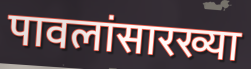
पावलांसारख्या